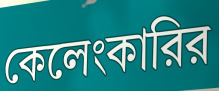
কেলেংকারির